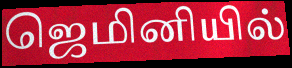
ஜெமினியில்